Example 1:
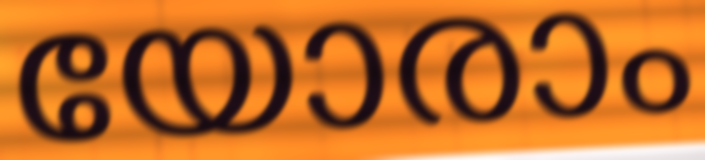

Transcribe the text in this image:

യോരാം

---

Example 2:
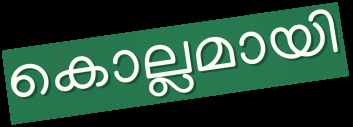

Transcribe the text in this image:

കൊല്ലമായി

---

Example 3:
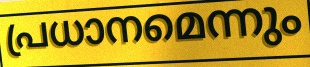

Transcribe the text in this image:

പ്രധാനമെന്നും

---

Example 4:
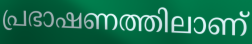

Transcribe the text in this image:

പ്രഭാഷണത്തിലാണ്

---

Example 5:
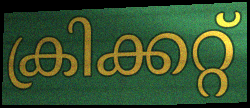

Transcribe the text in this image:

ക്രിക്കറ്റ്